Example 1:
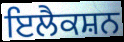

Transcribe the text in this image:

ਇਲੈਕਸ਼ਨ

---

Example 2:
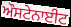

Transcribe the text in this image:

ਔਸਟੇਨਾਈਟ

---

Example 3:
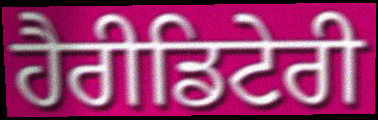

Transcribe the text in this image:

ਹੈਰੀਡਿਟੇਰੀ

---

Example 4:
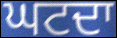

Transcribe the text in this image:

ਘਟਦਾ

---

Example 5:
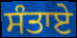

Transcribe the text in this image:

ਸੰਤਾਏ